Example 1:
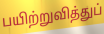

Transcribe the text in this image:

பயிற்றுவித்துப்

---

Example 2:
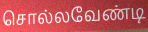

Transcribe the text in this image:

சொல்லவேண்டி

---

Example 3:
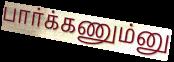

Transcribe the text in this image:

பார்க்கணும்னு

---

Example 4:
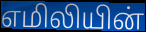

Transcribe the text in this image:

எமிலியின்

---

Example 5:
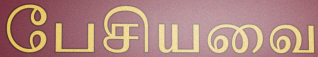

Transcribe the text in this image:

பேசியவை